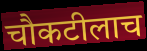
चौकटीलाच